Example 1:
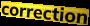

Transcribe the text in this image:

correction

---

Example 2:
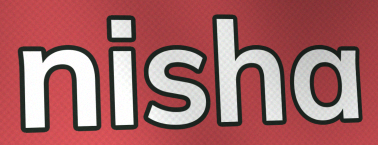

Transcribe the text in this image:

nisha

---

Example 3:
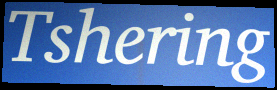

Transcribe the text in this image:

Tshering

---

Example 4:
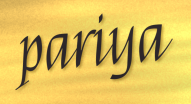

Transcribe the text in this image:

pariya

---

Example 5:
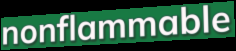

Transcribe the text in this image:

nonflammable